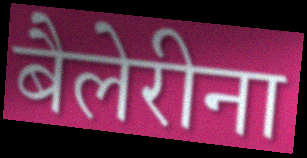
बैलेरीना